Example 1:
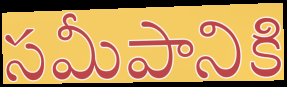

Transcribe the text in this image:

సమీపానికి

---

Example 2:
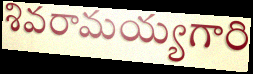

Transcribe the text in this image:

శివరామయ్యగారి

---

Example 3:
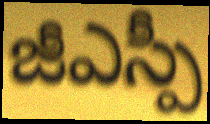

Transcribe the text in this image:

జీఎస్పీ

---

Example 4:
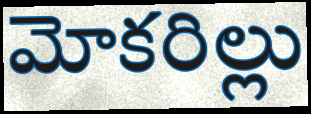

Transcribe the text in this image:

మోకరిల్లు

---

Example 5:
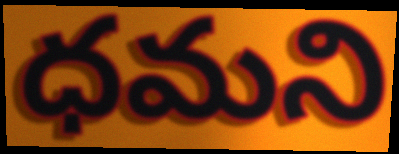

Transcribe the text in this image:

ధమని